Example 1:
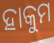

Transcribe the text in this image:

ହାକୁମ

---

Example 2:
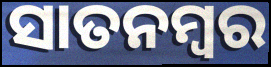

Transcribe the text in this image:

ସାତନମ୍ବର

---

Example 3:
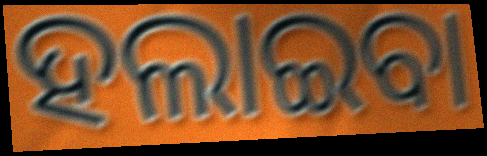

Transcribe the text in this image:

ହଲାଇବା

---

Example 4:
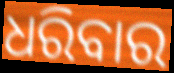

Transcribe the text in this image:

ଧରିବାର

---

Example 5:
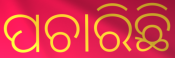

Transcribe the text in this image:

ପଚାରିଛି